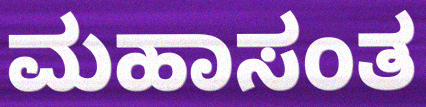
ಮಹಾಸಂತ